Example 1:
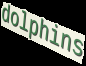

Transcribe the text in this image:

dolphins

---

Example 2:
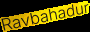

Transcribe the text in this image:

Ravbahadur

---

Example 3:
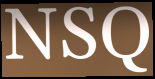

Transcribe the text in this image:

NSQ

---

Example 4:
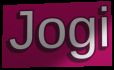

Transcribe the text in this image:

Jogi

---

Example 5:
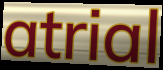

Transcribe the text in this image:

atrial